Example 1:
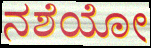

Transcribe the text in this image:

ನಶೆಯೋ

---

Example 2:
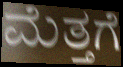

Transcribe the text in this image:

ಮೆತ್ತಗೆ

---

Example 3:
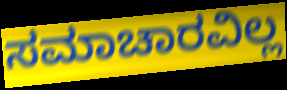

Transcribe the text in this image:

ಸಮಾಚಾರವಿಲ್ಲ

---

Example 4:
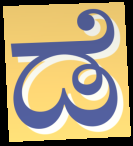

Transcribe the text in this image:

ಡೆ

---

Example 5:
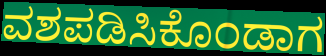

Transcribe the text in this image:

ವಶಪಡಿಸಿಕೊಂಡಾಗ